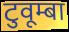
टुवूम्बा